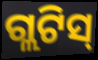
ଗ୍ଲଟିସ୍